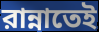
রান্নাতেই